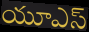
యూఎస్